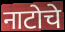
नाटोचे